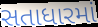
સતાધારમાં